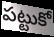
పట్టుకో